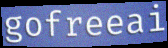
gofreeai